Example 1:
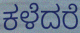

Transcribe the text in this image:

ಕಳೆದರೆ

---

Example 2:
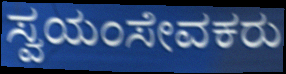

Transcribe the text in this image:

ಸ್ವಯಂಸೇವಕರು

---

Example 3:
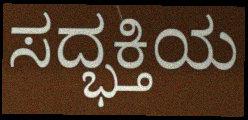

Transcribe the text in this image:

ಸದ್ಭಕ್ತಿಯ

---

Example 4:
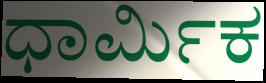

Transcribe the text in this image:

ಧಾರ್ಮಿಕ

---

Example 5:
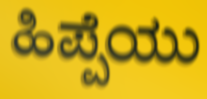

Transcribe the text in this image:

ಹಿಪ್ಪೆಯು